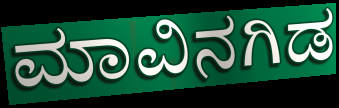
ಮಾವಿನಗಿಡ